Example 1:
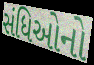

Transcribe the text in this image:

સંધિઓનો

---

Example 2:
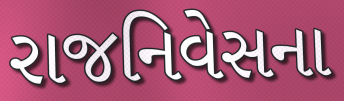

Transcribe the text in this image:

રાજનિવેસના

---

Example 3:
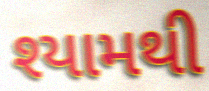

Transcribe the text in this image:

શ્યામથી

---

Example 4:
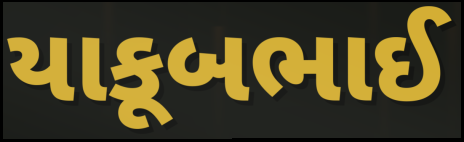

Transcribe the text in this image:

યાકૂબભાઈ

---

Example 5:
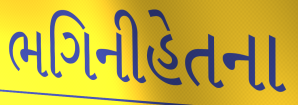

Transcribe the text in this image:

ભગિનીહેતના